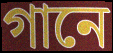
গানে